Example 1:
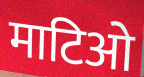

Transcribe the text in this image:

माटिओ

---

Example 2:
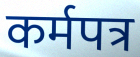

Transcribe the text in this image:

कर्मपत्र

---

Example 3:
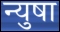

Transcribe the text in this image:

न्युषा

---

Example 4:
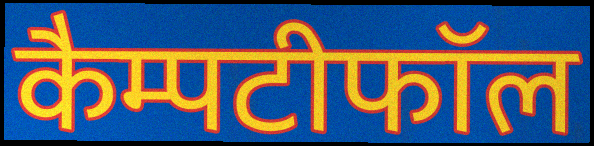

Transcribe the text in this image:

कैम्पटीफॉल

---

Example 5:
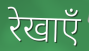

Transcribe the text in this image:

रेखाएँ